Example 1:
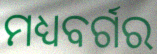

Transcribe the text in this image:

ମଧ୍ୟବର୍ଗର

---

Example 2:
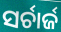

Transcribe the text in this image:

ସର୍ଚାର୍ଜ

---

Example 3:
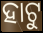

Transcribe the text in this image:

ହାଟୁ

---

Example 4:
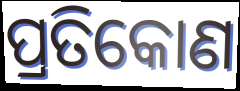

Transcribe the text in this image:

ପ୍ରତିକୋଣ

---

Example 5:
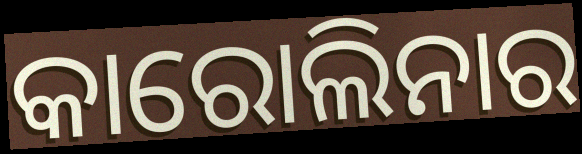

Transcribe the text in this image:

କାରୋଲିନାର